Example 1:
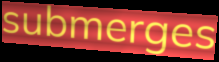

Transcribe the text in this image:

submerges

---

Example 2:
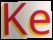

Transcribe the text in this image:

Ke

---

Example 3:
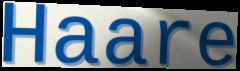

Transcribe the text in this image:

Haare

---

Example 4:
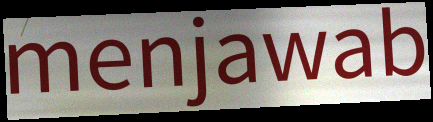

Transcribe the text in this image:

menjawab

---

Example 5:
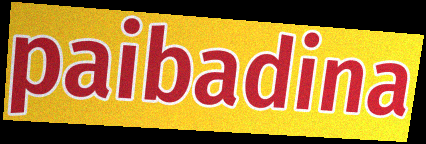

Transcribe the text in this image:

paibadina